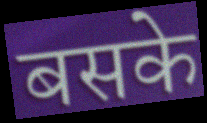
बसके